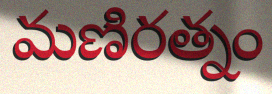
మణిరత్నం